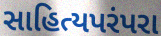
સાહિત્યપરંપરા